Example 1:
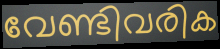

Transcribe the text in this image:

വേണ്ടിവരിക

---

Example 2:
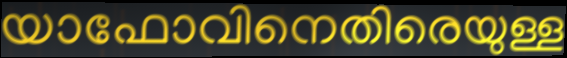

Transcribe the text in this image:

യാഫോവിനെതിരെയുള്ള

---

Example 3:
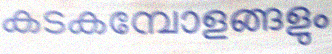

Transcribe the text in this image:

കടകമ്പോളങ്ങളും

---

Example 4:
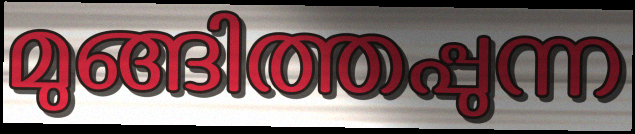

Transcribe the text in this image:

മുങ്ങിത്തപ്പുന്ന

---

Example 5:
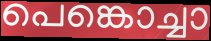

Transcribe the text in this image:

പെങ്കൊച്ചാ